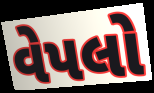
વેપલો